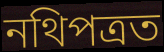
নথিপত্ৰত